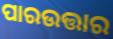
ପାରଉତ୍ତାର